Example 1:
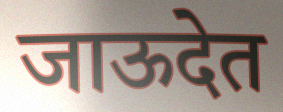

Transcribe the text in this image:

जाऊदेत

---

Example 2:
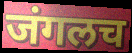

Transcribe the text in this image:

जंगलच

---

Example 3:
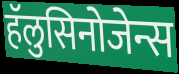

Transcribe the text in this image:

हॅलुसिनोजेन्स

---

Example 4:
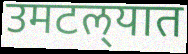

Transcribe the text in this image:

उमटल्यात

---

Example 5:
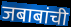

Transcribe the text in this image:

जबाबांची